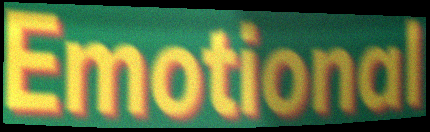
Emotional